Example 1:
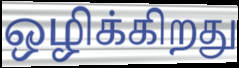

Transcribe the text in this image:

ஒழிக்கிறது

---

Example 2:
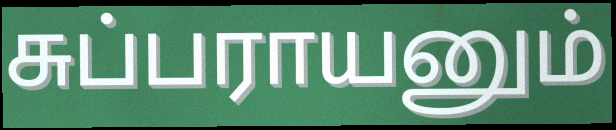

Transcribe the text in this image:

சுப்பராயனும்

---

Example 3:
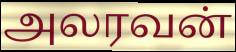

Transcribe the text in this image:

அலரவன்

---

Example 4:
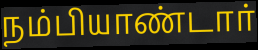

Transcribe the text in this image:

நம்பியாண்டார்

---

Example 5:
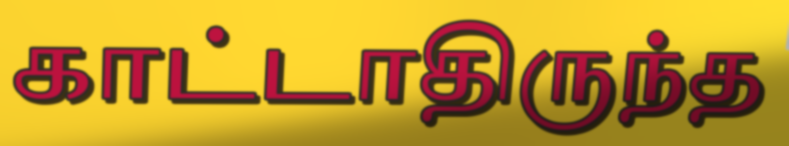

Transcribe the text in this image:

காட்டாதிருந்த